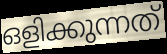
ഒളിക്കുന്നത്